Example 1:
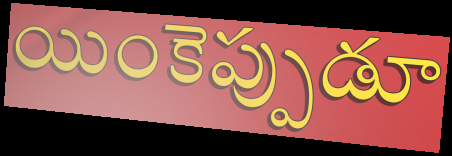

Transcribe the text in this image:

యింకెప్పుడూ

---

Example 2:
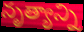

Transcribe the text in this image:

నృత్యాన్ని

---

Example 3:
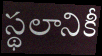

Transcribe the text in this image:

స్థలానికీ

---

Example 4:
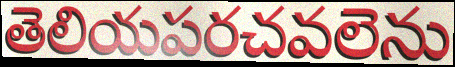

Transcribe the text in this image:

తెలియపరచవలెను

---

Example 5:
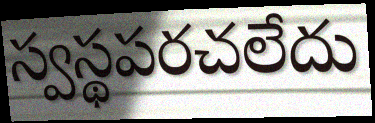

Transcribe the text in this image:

స్వస్థపరచలేదు